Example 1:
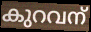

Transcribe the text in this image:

കുറവന്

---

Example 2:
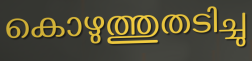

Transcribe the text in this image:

കൊഴുത്തുതടിച്ചു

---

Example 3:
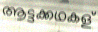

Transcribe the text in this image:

ആട്ടക്കഥകള്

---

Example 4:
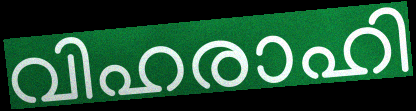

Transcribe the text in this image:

വിഹരാഹി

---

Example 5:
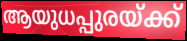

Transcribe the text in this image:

ആയുധപ്പുരയ്ക്ക്